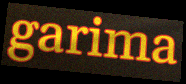
garima